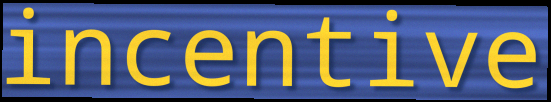
incentive